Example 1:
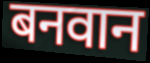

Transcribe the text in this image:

बनवान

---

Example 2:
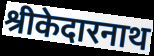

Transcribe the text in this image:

श्रीकेदारनाथ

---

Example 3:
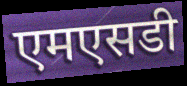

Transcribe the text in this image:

एमएसडी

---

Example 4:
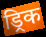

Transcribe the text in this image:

ड्रिक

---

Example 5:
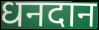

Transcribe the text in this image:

धनदान